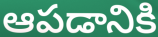
ఆపడానికి